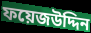
ফয়েজউদ্দিন